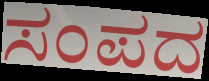
ಸಂಪದ